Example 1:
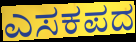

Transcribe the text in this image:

ಎಸಕಪದ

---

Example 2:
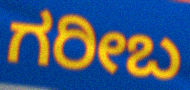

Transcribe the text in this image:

ಗರೀಬ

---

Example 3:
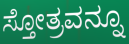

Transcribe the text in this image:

ಸ್ತೋತ್ರವನ್ನೂ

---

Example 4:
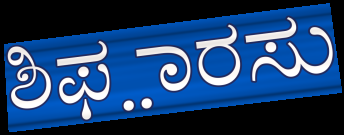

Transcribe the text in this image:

ಶಿಫ಼ಾರಸು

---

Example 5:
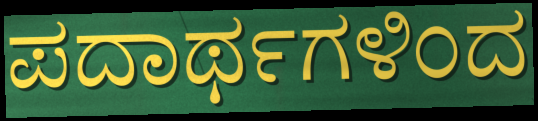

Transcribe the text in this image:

ಪದಾರ್ಥಗಳಿಂದ